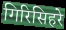
गिरिसिहरे